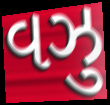
વઝુ